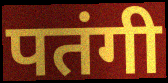
पतंगी